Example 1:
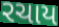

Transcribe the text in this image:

રચાય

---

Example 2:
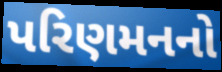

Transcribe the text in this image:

પરિણમનનો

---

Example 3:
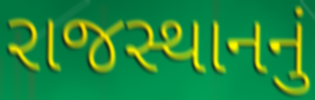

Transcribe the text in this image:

રાજસ્થાનનું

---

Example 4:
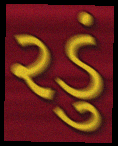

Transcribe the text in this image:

રડું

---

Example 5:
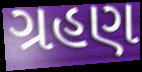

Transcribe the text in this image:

ગ્રહણ